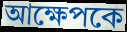
আক্ষেপকে